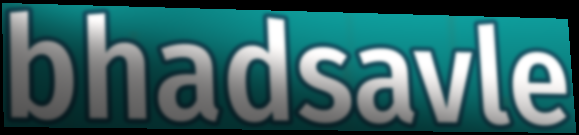
bhadsavle